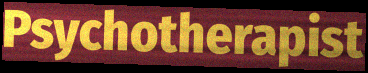
Psychotherapist